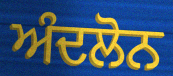
ਅੰਦਲੋਨ